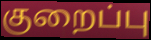
குறைப்பு